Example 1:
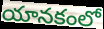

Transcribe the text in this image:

యానకంలో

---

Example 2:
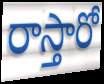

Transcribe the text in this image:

రాస్తారో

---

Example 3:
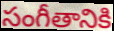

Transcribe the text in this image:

సంగీతానికి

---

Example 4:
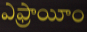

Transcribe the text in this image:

ఎఫ్రాయీం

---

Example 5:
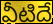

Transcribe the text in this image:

వీటిదే